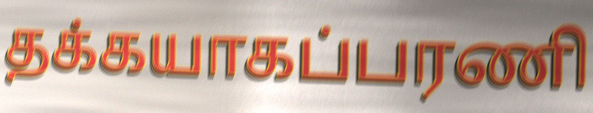
தக்கயாகப்பரணி